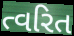
ત્વરિત